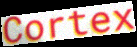
Cortex